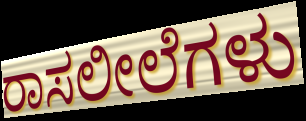
ರಾಸಲೀಲೆಗಳು